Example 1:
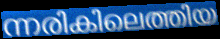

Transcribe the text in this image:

ന്നരികിലെത്തിയ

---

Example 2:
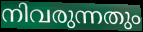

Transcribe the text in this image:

നിവരുന്നതും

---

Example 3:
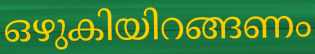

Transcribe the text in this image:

ഒഴുകിയിറങ്ങണം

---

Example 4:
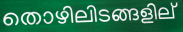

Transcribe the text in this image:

തൊഴിലിടങ്ങളില്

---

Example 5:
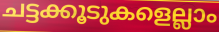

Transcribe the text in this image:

ചട്ടക്കൂടുകളെല്ലാം